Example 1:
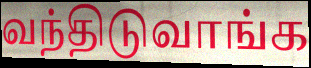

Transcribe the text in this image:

வந்திடுவாங்க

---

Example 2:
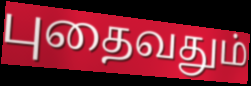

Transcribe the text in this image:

புதைவதும்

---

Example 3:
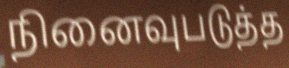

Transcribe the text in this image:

நினைவுபடுத்த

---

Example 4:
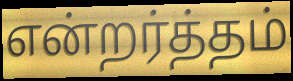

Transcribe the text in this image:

என்றர்த்தம்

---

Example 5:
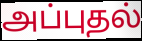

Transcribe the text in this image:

அப்புதல்